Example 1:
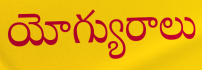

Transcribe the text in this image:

యోగ్యురాలు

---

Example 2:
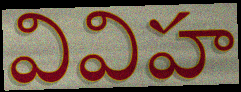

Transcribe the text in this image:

వివిహ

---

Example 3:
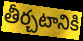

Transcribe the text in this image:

తీర్చటానికి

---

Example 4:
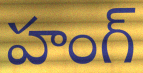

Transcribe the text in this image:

హంగ్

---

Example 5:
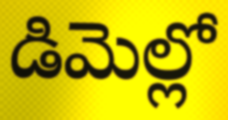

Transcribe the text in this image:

డిమెల్లో